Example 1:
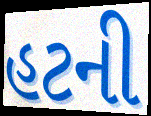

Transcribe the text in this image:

હટની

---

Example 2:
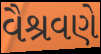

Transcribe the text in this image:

વૈશ્રવણે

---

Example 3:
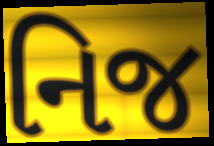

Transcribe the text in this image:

નિજ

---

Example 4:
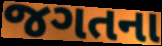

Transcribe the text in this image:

જગતના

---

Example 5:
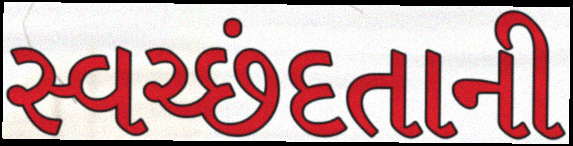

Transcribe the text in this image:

સ્વચ્છંદતાની